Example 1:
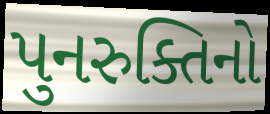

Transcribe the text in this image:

પુનરુક્તિનો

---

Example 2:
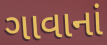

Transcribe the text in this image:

ગાવાનાં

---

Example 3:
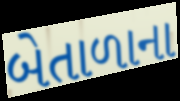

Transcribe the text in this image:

બેતાળાના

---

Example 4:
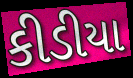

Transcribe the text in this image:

કીડીયા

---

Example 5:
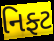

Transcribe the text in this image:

નિફ્ટ